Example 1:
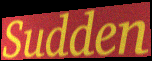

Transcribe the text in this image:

Sudden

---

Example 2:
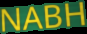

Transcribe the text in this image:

NABH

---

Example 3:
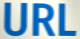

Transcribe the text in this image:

URL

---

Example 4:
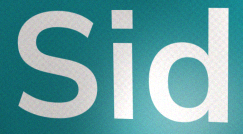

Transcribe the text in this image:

Sid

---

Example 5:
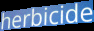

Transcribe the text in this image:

herbicide